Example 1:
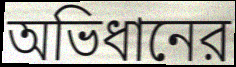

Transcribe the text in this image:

অভিধানের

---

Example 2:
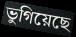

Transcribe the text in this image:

ভুগিয়েছে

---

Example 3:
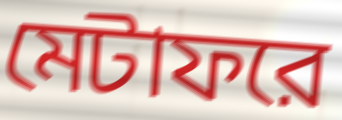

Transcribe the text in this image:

মেটাফরে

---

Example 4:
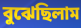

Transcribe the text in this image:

বুঝেছিলাম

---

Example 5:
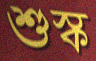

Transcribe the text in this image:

শুস্ক